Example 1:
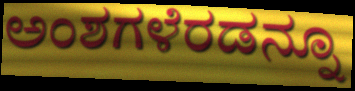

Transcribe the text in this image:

ಅಂಶಗಳೆರಡನ್ನೂ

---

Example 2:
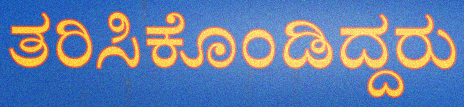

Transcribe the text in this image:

ತರಿಸಿಕೊಂಡಿದ್ದರು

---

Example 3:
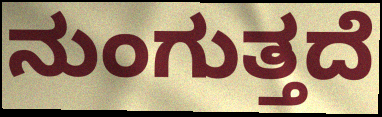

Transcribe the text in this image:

ನುಂಗುತ್ತದೆ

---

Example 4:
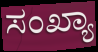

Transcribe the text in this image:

ಸಂಖ್ಯಾ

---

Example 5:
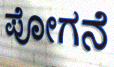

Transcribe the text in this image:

ಪೋಗನೆ